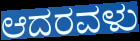
ಆದರವಳು